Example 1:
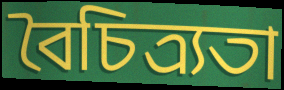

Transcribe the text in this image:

বৈচিত্ৰ্যতা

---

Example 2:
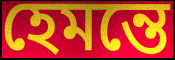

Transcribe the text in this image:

হেমন্তে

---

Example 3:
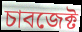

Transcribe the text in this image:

চাবজেক্ট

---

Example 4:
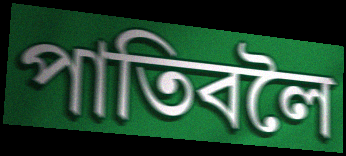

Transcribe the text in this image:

পাতিবলৈ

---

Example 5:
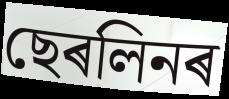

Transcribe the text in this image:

ছেৰলিনৰ